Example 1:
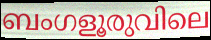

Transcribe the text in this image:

ബംഗളൂരുവിലെ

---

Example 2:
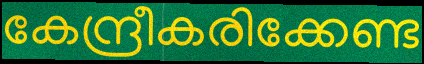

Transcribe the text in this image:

കേന്ദ്രീകരിക്കേണ്ട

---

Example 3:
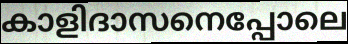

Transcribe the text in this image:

കാളിദാസനെപ്പോലെ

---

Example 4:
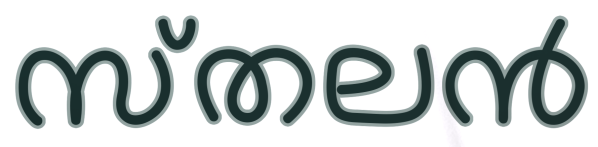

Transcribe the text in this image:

സ്‌തലൻ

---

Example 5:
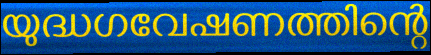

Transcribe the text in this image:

യുദ്ധഗവേഷണത്തിന്റെ